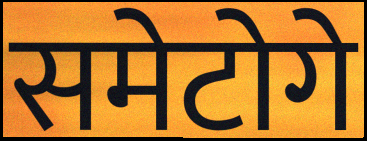
समेटोगे